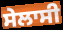
ਸੇਲਾਸੀ